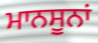
ਮਾਨਸੂਨਾਂ